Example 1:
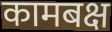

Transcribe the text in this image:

कामबक्ष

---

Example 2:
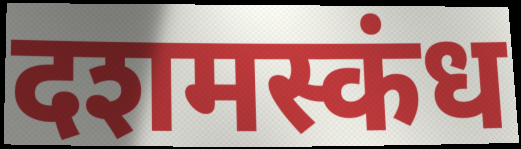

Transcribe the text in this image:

दशमस्कंध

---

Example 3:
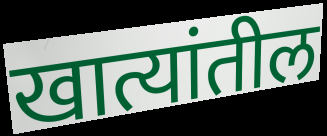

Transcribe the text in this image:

खात्यांतील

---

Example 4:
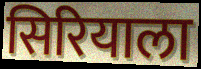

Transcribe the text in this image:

सिरियाला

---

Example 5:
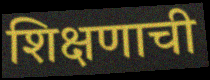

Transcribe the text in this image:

शिक्षणाची